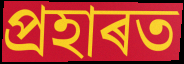
প্ৰহাৰত